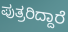
ಪುತ್ರರಿದ್ದಾರೆ